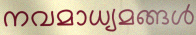
നവമാധ്യമങ്ങൾ